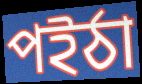
পইঠা